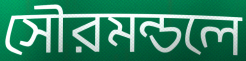
সৌরমন্ডলে